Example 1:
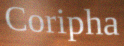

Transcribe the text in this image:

Coripha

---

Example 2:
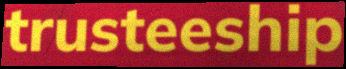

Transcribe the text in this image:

trusteeship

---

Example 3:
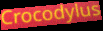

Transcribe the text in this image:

Crocodylus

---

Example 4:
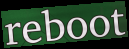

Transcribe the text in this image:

reboot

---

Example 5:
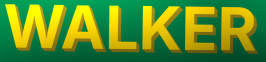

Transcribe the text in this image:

WALKER